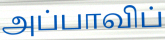
அப்பாவிப்